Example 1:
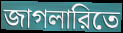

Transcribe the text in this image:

জাগলারিতে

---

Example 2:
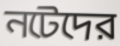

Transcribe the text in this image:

নটেদের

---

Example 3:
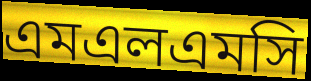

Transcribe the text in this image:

এমএলএমসি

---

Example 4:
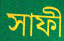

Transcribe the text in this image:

সাফী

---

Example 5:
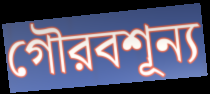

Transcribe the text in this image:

গৌরবশূন্য